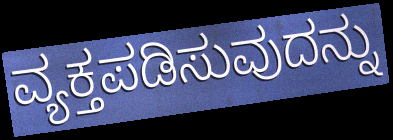
ವ್ಯಕ್ತಪಡಿಸುವುದನ್ನು